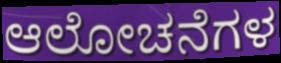
ಆಲೋಚನೆಗಳ